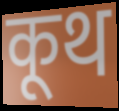
कूथ